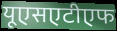
यूएसएटीएफ